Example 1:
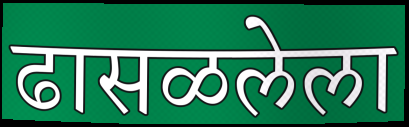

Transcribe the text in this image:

ढासळलेला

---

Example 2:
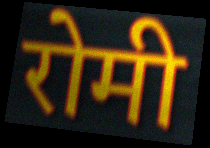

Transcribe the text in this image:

रोमी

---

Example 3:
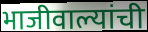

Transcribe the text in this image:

भाजीवाल्यांची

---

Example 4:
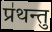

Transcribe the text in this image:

प्र॑थन्तु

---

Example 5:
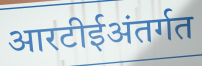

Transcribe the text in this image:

आरटीईअंतर्गत